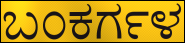
ಬಂಕರ್ಗಳ